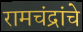
रामचंद्रांचे